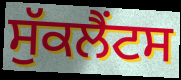
ਸੁੱਕਲੈਂਟਸ